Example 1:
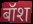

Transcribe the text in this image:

बॉश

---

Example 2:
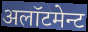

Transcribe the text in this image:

अलॉटमेन्ट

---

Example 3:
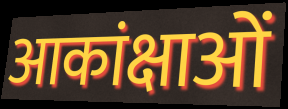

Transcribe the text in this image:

आकांक्षाओं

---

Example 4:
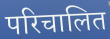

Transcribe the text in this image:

परिचालित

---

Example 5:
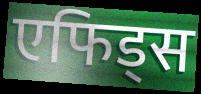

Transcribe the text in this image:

एफिड्स